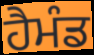
ਹੈਮੰਡ